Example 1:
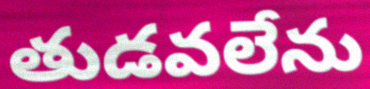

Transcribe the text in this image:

తుడవలేను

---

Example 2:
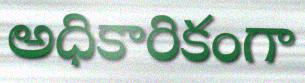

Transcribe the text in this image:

అధికారికంగా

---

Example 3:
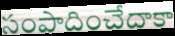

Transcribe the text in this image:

సంపాదించేదాకా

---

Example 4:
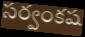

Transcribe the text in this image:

సర్వంకష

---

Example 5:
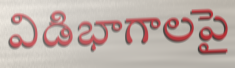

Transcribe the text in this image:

విడిభాగాలపై